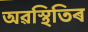
অৱস্থিতিৰ